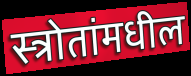
स्त्रोतांमधील